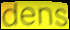
dens